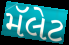
મૅલેટ